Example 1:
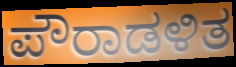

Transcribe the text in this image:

ಪೌರಾಡಳಿತ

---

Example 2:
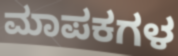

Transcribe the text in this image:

ಮಾಪಕಗಳ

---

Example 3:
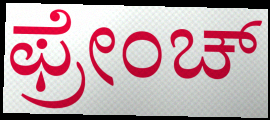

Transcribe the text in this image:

ಫ್ರೇಂಚ್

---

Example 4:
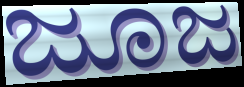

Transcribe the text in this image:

ಜೂಜ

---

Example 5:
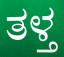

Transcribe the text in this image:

ತಳ್ತ